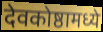
देवकोष्ठामध्ये